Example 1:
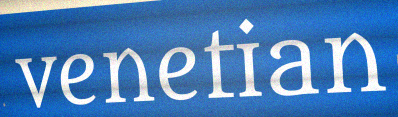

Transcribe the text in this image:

venetian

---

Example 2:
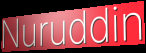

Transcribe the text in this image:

Nuruddin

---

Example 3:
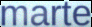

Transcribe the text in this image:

marte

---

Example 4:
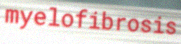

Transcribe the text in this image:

myelofibrosis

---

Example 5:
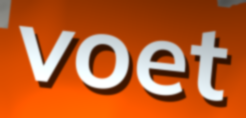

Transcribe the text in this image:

voet